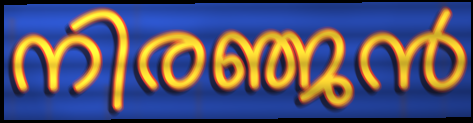
നിരഞ്ജൻ